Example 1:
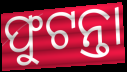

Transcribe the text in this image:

ଫୁଟନ୍ତା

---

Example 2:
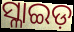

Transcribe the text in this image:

ସ୍ଳାଇଡ଼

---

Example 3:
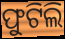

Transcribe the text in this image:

ଫୁଟିଲି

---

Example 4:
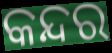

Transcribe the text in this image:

କନ୍ଦର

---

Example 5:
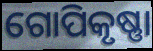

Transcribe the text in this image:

ଗୋପିକୃଷ୍ଣା